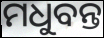
ମଧୁବନ୍ତ